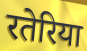
रतेरिया